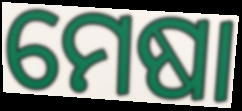
ମେଷା